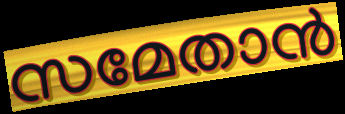
സമേതാൻ